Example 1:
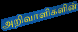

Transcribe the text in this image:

அறிவாளிகளின்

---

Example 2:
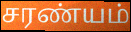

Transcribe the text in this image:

சரண்யம்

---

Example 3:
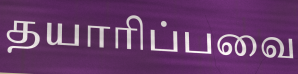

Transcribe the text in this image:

தயாரிப்பவை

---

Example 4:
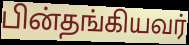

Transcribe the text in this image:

பின்தங்கியவர்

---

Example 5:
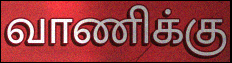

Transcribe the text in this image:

வாணிக்கு